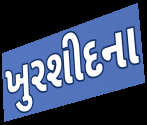
ખુરશીદના